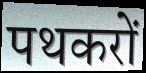
पथकरों